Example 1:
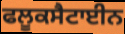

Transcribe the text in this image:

ਫਲੂਕਸੈਟਾਈਨ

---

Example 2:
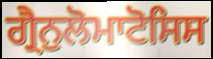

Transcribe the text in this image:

ਗ੍ਰੈਨੁਲੋਮਾਟੋਸਿਸ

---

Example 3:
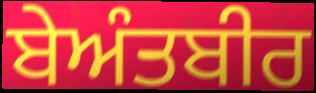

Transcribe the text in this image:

ਬੇਅੰਤਬੀਰ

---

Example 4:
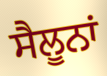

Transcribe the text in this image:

ਸੈਲੂਨਾਂ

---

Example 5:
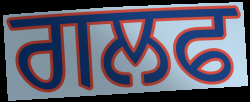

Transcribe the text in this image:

ਗਲਫ